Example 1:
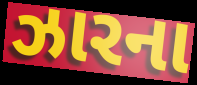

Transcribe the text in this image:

ઝારના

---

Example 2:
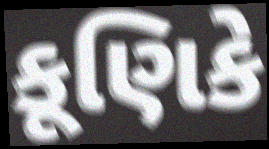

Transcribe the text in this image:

કૂણિકે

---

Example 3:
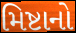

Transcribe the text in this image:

મિષ્ટાનો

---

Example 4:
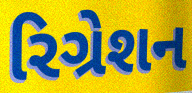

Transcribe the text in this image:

રિગ્રેશન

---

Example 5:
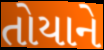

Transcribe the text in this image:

તોયાને